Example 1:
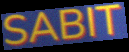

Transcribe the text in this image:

SABIT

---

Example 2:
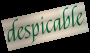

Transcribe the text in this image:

despicable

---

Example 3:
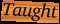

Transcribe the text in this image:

Taught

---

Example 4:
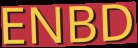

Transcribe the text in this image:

ENBD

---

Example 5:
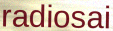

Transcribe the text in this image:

radiosai